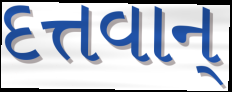
દત્તવાન્